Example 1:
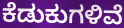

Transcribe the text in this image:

ಕೆಡುಕುಗಳಿವೆ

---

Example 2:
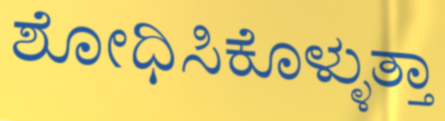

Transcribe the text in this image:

ಶೋಧಿಸಿಕೊಳ್ಳುತ್ತಾ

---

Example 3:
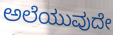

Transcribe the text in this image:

ಅಲೆಯುವುದೇ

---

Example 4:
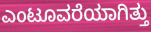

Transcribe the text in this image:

ಎಂಟೂವರೆಯಾಗಿತ್ತು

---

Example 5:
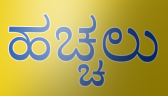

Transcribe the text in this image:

ಹಚ್ಚಲು